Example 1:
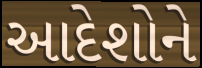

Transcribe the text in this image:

આદેશોને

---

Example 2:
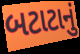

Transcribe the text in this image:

બટાટાનું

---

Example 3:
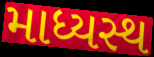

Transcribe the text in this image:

માધ્યસ્થ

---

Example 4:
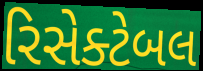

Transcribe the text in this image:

રિસેક્ટેબલ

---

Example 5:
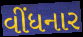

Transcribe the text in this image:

વીંધનાર